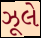
ઝૂલે